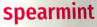
spearmint